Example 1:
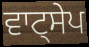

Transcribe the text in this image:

ਵਾਟ੍ਸੇਪ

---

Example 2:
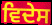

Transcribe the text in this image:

ਵਿਦੇਸ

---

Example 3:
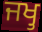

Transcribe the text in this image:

ਜਖ੍ਤ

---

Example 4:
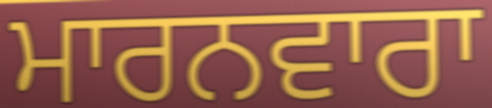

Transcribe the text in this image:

ਮਾਰਨਵਾਰਾ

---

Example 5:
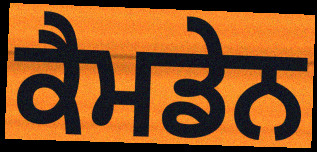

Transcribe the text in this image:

ਕੈਮਡੇਨ